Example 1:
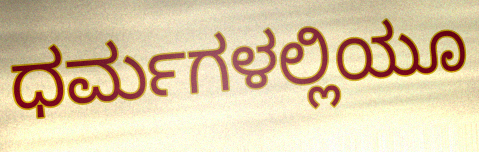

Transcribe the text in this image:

ಧರ್ಮಗಳಲ್ಲಿಯೂ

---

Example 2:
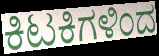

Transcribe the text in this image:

ಕಿಟಕಿಗಳಿಂದ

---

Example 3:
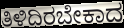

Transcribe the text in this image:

ತಿಳಿದಿರಬೇಕಾದ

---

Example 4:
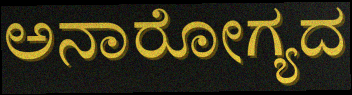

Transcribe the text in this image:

ಅನಾರೋಗ್ಯದ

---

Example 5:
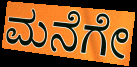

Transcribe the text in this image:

ಮನೆಗೇ